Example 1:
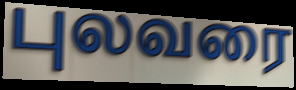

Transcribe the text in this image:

புலவரை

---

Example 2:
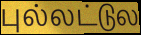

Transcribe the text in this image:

புல்லட்டுல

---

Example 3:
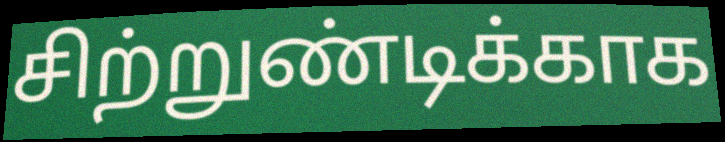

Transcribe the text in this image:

சிற்றுண்டிக்காக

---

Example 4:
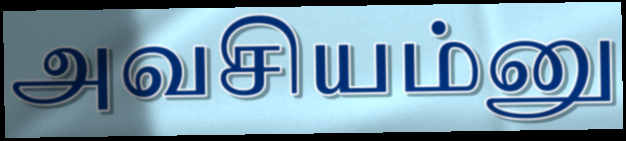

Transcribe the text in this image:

அவசியம்னு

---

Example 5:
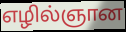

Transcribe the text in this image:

எழில்ஞான